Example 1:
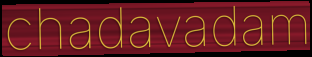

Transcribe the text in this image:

chadavadam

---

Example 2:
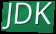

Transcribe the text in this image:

JDK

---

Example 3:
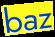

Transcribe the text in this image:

baz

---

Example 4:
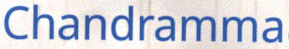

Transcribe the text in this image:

Chandramma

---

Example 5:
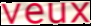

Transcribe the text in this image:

veux